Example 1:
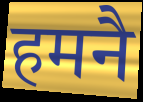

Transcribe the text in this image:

हमनै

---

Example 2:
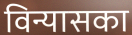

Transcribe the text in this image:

विन्यासका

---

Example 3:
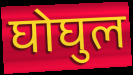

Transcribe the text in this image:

घोघुल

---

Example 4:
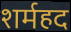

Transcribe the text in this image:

शर्महद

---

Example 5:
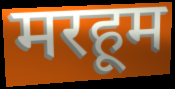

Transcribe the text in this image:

मरहूम